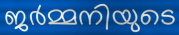
ജർമ്മനിയുടെ